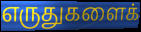
எருதுகளைக்